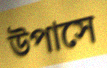
উপাসে